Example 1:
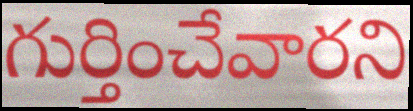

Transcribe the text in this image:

గుర్తించేవారని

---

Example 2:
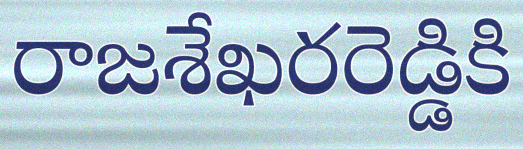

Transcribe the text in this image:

రాజశేఖరరెడ్డికి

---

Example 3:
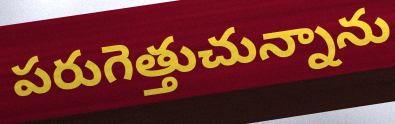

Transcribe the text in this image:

పరుగెత్తుచున్నాను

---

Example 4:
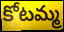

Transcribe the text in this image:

కోటమ్మ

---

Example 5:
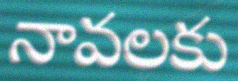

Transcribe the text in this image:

నావలకు